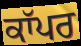
ਕਾੱਪਰ